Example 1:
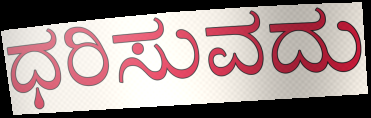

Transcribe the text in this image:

ಧರಿಸುವದು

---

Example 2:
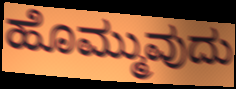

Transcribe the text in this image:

ಹೊಮ್ಮುವುದು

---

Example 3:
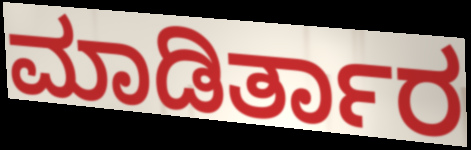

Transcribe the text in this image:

ಮಾಡಿರ್ತಾರ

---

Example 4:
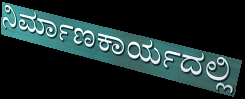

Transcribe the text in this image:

ನಿರ್ಮಾಣಕಾರ್ಯದಲ್ಲಿ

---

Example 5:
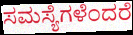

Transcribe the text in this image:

ಸಮಸ್ಯೆಗಳೆಂದರೆ